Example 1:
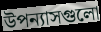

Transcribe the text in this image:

উপন্যাসগুলো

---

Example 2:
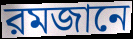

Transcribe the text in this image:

রমজানে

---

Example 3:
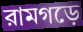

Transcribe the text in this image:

রামগড়ে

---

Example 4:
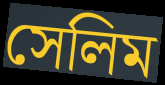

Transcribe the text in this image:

সেলিম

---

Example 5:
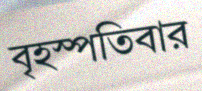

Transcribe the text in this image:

বৃহস্পতিবার